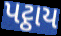
પટ્ઠાય